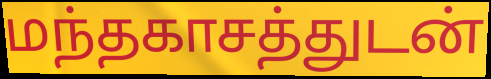
மந்தகாசத்துடன்